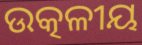
ଉତ୍କଳୀୟ